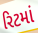
રિટમાં